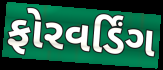
ફોરવર્ડિંગ